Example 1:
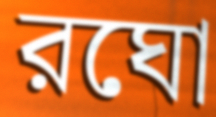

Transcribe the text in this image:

রঘো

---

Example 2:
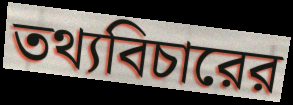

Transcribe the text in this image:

তথ্যবিচারের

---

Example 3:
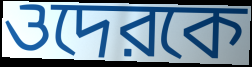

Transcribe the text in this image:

ওদেরকে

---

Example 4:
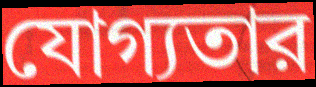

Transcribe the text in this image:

যোগ্যতার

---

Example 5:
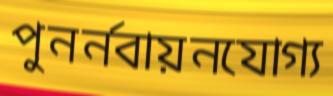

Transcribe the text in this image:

পুনর্নবায়নযোগ্য